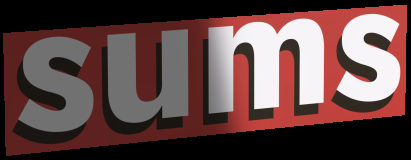
sums